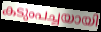
കടുംപച്ചയായി